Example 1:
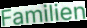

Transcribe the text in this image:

Familien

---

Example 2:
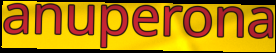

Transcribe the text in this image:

anuperona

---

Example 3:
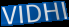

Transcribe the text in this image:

VIDHI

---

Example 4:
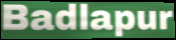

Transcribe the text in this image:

Badlapur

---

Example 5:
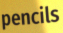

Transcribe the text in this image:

pencils